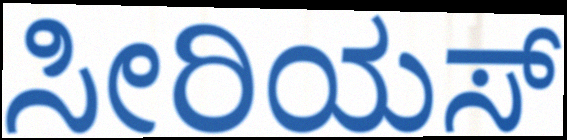
ಸೀರಿಯಸ್